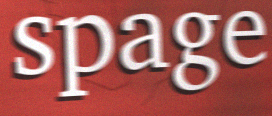
spage